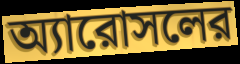
অ্যারোসলের